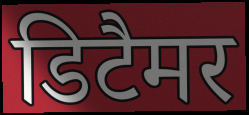
डिटैमर